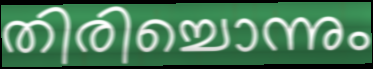
തിരിച്ചൊന്നും